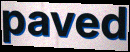
paved